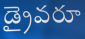
డ్రైవరూ